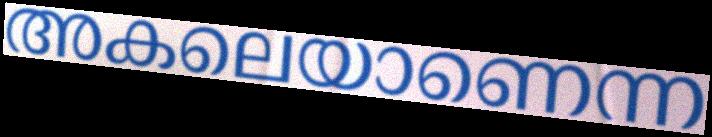
അകലെയാണെന്ന